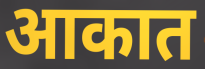
आकात